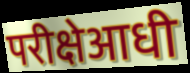
परीक्षेआधी